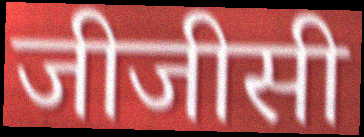
जीजीसी